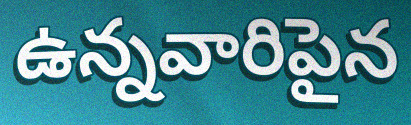
ఉన్నవారిపైన